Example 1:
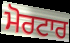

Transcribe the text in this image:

ਮੋਰਟਾਰ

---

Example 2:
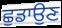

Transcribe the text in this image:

ਛੁਡਾਉਣ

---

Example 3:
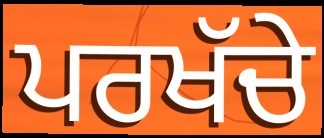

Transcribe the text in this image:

ਪਰਖੱਚੇ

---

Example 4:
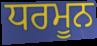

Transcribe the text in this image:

ਧਰਮੂਨ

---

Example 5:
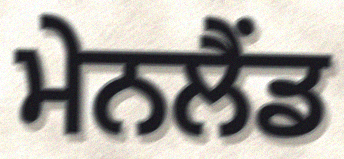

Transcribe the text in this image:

ਮੇਨਲੈਂਡ